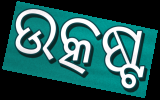
ଉତ୍କଷ୍ଟ